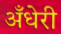
अँधेरी